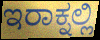
ಇರಾಕ್ನಲ್ಲಿ